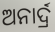
ଅନାର୍ଦ୍ର